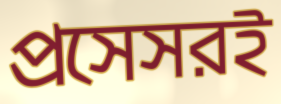
প্রসেসরই